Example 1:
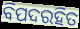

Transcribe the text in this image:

ବିପଦରହିତ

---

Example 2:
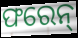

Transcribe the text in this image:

ଫରେନ୍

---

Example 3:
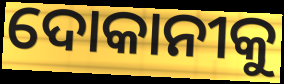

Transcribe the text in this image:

ଦୋକାନୀକୁ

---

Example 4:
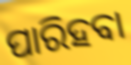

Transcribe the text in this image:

ପାରିହବା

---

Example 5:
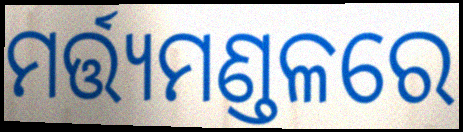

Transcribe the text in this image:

ମର୍ତ୍ତ୍ୟମଣ୍ଡଳରେ